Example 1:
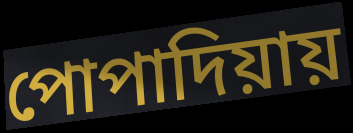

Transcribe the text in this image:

পোপাদিয়ায়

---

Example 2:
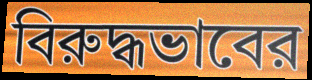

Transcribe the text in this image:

বিরুদ্ধভাবের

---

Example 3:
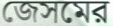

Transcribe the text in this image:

জেসমের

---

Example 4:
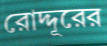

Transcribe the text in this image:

রোদ্দূরের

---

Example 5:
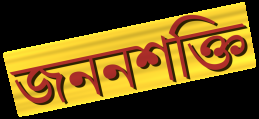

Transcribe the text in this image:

জননশক্তি